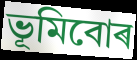
ভূমিবোৰ